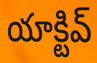
యాక్టివ్